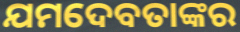
ଯମଦେବତାଙ୍କର